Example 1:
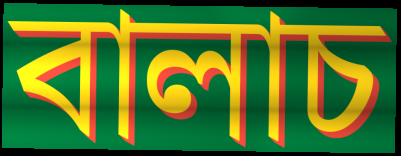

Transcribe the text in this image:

বালাচ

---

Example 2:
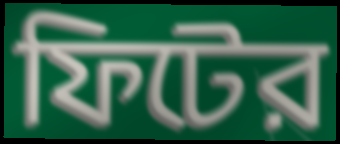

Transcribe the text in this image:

ফিটের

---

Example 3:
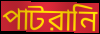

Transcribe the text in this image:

পাটরানি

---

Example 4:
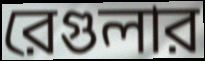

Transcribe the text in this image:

রেগুলার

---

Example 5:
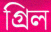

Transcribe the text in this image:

গ্রিল